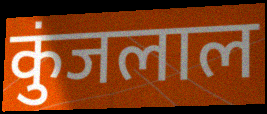
कुंजलाल